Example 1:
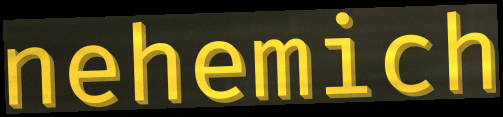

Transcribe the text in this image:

nehemich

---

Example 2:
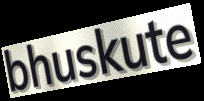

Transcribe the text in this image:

bhuskute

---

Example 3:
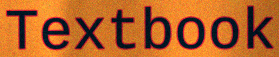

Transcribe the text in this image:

Textbook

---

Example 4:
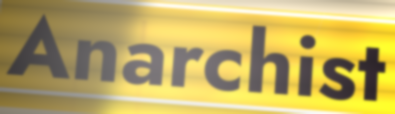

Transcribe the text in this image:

Anarchist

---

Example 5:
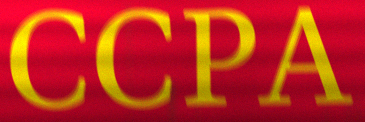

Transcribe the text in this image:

CCPA